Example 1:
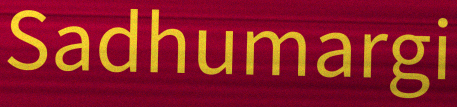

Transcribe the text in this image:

Sadhumargi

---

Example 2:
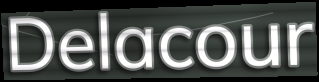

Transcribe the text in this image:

Delacour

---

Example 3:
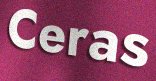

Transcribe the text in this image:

Ceras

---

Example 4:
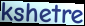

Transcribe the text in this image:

kshetre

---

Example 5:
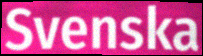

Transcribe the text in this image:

Svenska